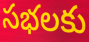
సభలకు